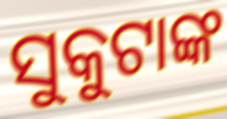
ସୁକୁଟାଙ୍କ